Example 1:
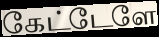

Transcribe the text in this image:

கேட்டேளே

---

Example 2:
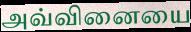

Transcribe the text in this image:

அவ்வினையை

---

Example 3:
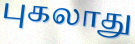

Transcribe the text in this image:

புகலாது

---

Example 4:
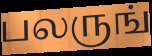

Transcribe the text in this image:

பலருங்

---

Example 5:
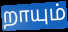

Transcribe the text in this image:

றாயும்